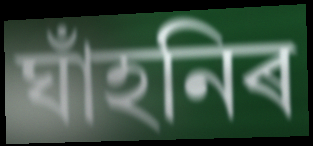
ঘাঁহনিৰ